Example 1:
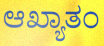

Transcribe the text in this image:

ಆಖ್ಯಾತಂ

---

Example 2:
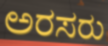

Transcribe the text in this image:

ಅರಸರು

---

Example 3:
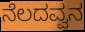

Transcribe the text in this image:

ನೆಲದವ್ವನ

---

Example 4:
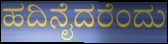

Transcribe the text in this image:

ಹದಿನೈದರೆಂದು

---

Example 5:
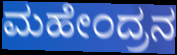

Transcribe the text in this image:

ಮಹೇಂದ್ರನ